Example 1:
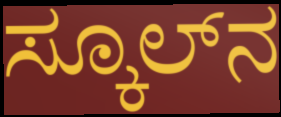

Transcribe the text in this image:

ಸ್ಕೂಲ್‌ನ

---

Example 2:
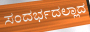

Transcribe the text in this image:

ಸಂದರ್ಭದಲ್ಲಾದ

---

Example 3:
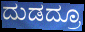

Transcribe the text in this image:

ದುಡದ್ರೂ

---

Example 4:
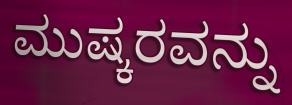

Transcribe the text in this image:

ಮುಷ್ಕರವನ್ನು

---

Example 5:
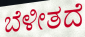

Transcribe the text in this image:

ಬೆಳೀತದೆ